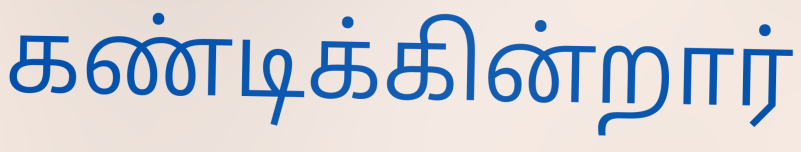
கண்டிக்கின்றார்